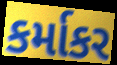
કર્માકર